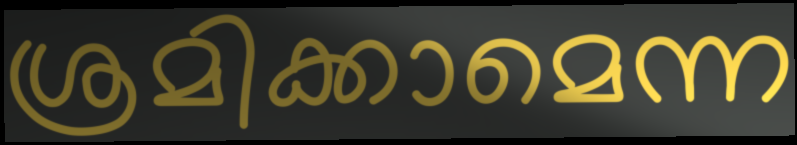
ശ്രമിക്കാമെന്ന